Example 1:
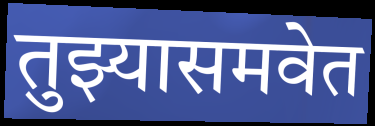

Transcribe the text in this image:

तुझ्यासमवेत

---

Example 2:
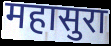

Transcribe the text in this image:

महासुरा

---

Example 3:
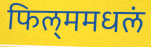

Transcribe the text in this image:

फिल्ममधलं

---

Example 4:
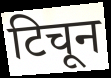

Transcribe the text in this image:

टिचून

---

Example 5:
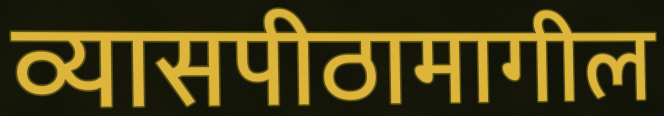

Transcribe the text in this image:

व्यासपीठामागील